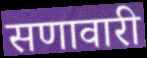
सणावारी